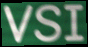
VSI